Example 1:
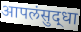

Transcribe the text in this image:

आपलंसुद्धा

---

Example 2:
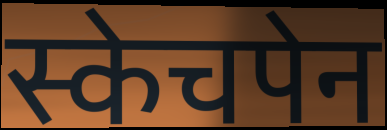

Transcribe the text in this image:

स्केचपेन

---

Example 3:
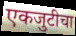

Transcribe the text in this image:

एकजुटीचा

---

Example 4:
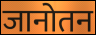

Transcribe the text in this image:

जानोतन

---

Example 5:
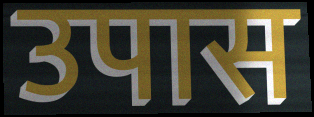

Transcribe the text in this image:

उपास